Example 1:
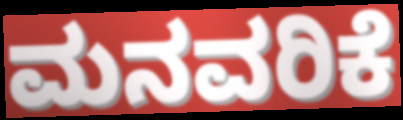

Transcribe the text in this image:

ಮನವರಿಕೆ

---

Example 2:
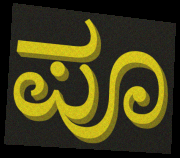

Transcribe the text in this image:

ಪೂ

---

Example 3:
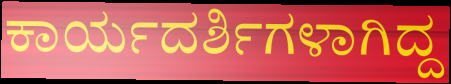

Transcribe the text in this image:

ಕಾರ್ಯದರ್ಶಿಗಳಾಗಿದ್ದ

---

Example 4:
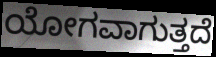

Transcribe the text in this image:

ಯೋಗವಾಗುತ್ತದೆ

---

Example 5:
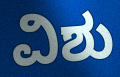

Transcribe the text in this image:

ವಿಶು